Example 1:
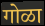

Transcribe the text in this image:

गोळा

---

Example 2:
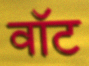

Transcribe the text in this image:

वॉट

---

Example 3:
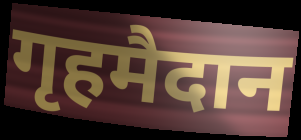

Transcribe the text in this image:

गृहमैदान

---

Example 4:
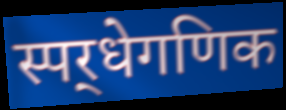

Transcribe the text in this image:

स्पर्धेगणिक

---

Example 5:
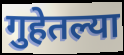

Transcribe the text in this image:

गुहेतल्या